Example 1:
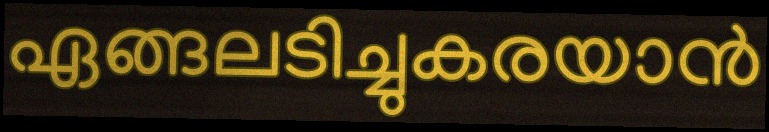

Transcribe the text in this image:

ഏങ്ങലടിച്ചുകരയാൻ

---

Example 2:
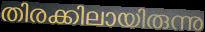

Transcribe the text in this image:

തിരക്കിലായിരുന്നു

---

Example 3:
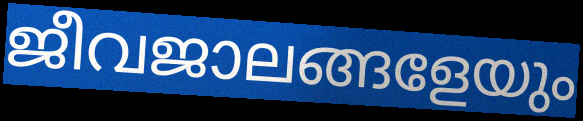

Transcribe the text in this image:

ജീവജാലങ്ങളേയും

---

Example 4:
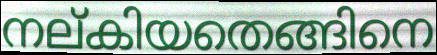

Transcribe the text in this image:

നല്കിയതെങ്ങിനെ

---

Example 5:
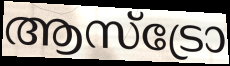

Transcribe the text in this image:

ആസ്ട്രോ